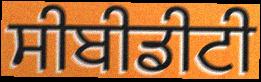
ਸੀਬੀਡੀਟੀ